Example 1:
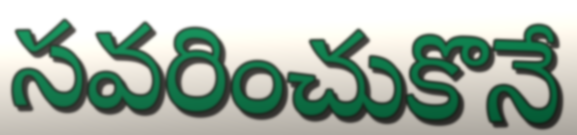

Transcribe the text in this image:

సవరించుకొనే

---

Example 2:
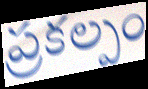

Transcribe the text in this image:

ప్రకల్పం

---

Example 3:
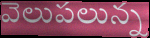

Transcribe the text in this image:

వెలుపలున్న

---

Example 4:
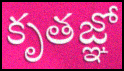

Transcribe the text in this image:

కృతజ్ఞో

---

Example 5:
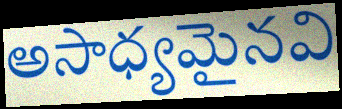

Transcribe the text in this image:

అసాధ్యమైనవి